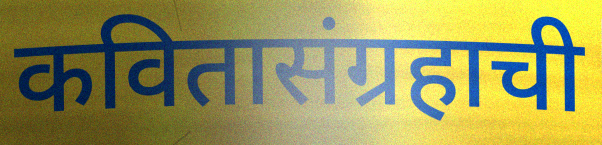
कवितासंग्रहाची